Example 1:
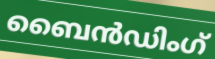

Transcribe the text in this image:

ബൈൻഡിംഗ്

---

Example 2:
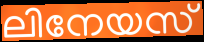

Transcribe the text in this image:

ലിനേയസ്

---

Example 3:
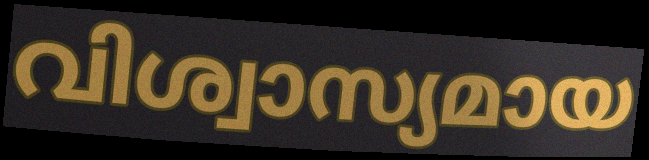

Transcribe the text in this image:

വിശ്വാസ്യമായ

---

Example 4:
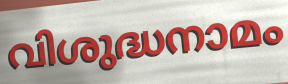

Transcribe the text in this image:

വിശുദ്ധനാമം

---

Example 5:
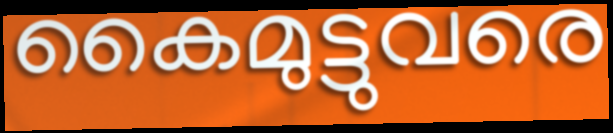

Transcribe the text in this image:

കൈമുട്ടുവരെ